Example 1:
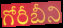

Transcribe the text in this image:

గోరీబీని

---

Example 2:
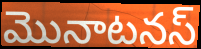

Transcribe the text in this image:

మొనాటనస్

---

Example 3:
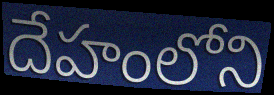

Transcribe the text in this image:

దేహంలోని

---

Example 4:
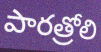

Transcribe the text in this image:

పారత్రోలి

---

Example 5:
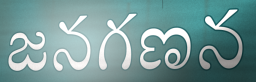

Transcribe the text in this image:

జనగణన